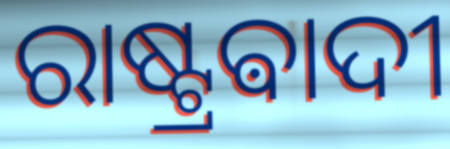
ରାଷ୍ଟ୍ରଵାଦୀ